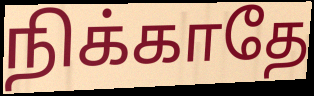
நிக்காதே